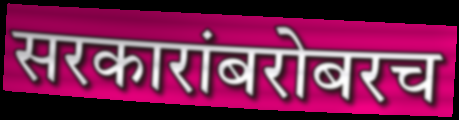
सरकारांबरोबरच